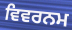
ਵਿਵਰਨਮ